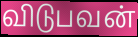
விடுபவன்